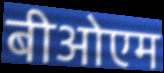
बीओएम